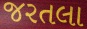
જરતલા